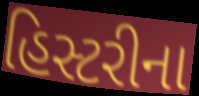
હિસ્ટરીના